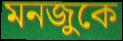
মনজুকে